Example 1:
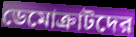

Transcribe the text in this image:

ডেমোক্রাটদের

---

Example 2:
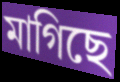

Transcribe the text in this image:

মাগিছে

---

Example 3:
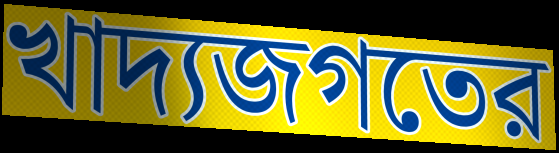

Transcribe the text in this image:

খাদ্যজগতের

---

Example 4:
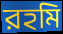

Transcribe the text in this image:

রহমি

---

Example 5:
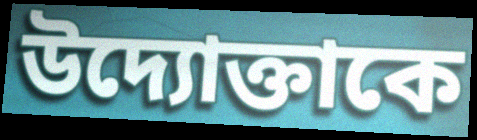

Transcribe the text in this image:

উদ্যোক্তাকে